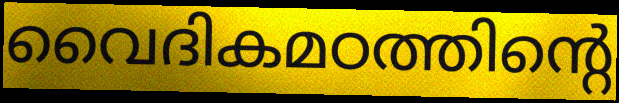
വൈദികമഠത്തിന്റെ